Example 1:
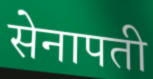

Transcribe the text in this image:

सेनापती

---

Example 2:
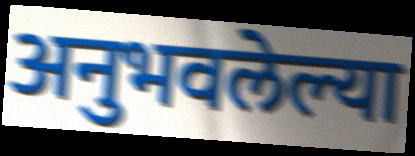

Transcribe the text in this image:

अनुभवलेल्या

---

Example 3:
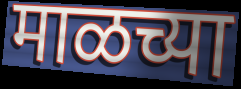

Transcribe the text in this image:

माळच्या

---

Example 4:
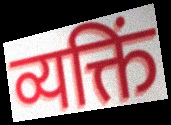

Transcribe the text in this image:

व्यक्तिं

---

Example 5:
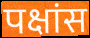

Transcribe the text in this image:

पक्षांस